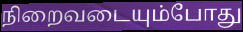
நிறைவடையும்போது